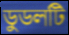
ডুডলটি